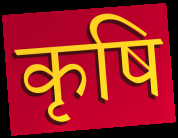
कृषि